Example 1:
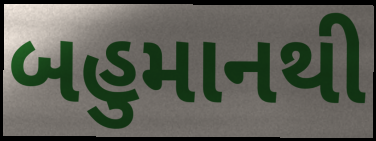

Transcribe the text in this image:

બહુમાનથી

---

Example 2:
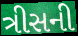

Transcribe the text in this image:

ત્રીસની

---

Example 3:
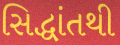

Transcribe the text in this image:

સિદ્ધાંતથી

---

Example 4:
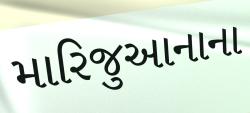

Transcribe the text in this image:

મારિજુઆનાના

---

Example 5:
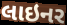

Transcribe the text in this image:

લાઇનર